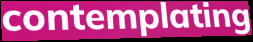
contemplating